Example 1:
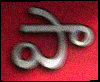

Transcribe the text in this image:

పా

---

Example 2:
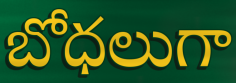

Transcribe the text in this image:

బోధలుగా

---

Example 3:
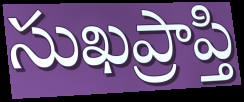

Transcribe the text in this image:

సుఖప్రాప్తి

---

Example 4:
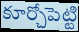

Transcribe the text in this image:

కూర్చోపెట్టి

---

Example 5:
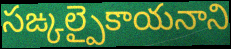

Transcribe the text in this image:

సఙ్కల్పైకాయనాని